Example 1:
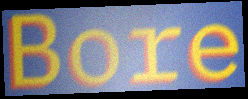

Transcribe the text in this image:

Bore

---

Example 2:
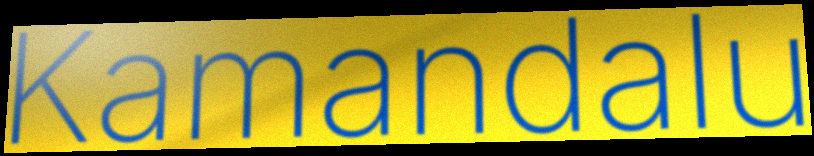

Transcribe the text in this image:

Kamandalu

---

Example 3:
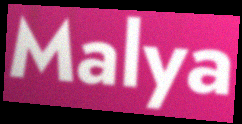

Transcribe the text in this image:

Malya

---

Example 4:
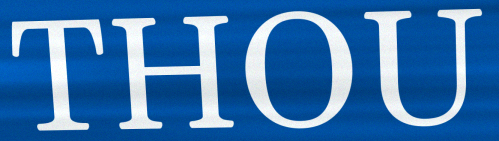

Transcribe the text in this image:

THOU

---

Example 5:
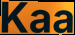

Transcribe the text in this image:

Kaa